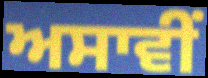
ਅਸਾਵੀਂ